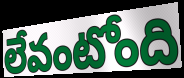
లేవంటోంది